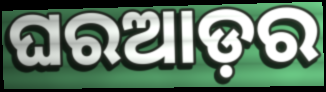
ଘରଆଡ଼ର